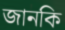
জানকি